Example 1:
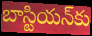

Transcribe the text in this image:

బాస్టియన్‌కు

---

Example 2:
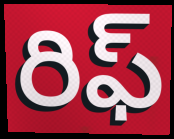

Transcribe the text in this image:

రిఫ్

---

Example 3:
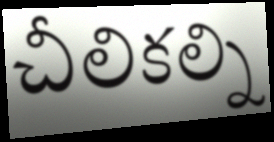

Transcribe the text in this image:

చీలికల్ని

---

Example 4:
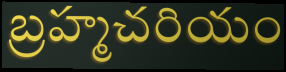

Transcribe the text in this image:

బ్రహ్మచరియం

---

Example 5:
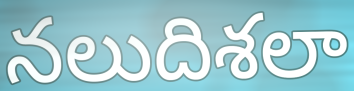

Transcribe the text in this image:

నలుదిశలా